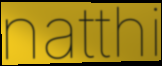
natthi